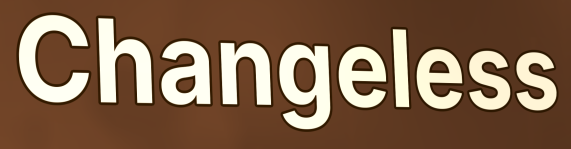
Changeless